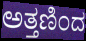
ಅತ್ತಣಿಂದ